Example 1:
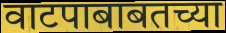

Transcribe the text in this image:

वाटपाबाबतच्या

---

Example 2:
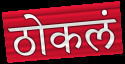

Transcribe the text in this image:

ठोकलं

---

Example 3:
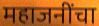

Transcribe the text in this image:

महाजनींचा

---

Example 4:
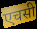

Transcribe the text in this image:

एचसी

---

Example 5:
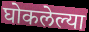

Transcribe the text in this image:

घोकलेल्या